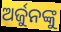
ଅର୍ଜୁନଙ୍କୁ